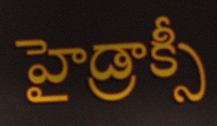
హైడ్రాక్సీ